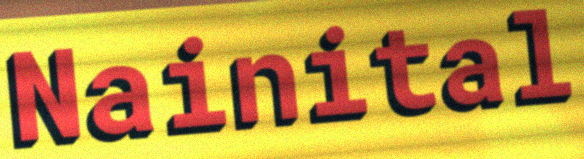
Nainital